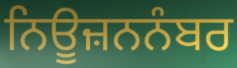
ਨਿਊਜ਼ਨਨੰਬਰ